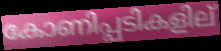
കോണിപ്പടികളില്